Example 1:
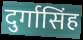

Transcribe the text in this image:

दुर्गासिंह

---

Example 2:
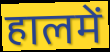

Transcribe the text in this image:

हालमें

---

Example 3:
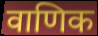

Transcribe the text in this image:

वाणिक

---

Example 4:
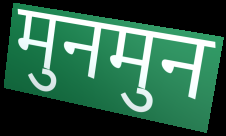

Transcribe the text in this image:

मुनमुन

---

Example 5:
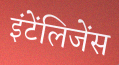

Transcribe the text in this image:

इंटेंलिजेंस